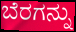
ಬೆರಗನ್ನು